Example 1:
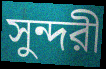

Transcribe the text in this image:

সুন্দরী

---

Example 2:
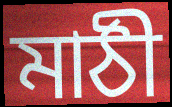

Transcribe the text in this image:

মাঠী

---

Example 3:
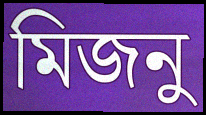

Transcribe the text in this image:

মিজনু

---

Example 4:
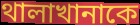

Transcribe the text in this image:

থালাখানাকে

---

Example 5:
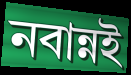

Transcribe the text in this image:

নবান্নই